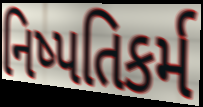
નિષ્પતિકર્મ